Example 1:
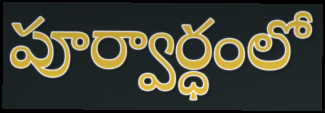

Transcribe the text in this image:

పూర్వార్ధంలో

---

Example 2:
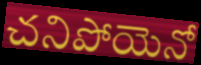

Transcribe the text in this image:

చనిపోయెనో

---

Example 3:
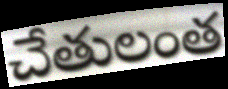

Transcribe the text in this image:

చేతులంత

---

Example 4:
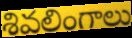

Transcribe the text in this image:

శివలింగాలు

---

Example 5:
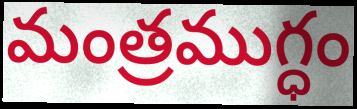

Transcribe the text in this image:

మంత్రముగ్ధం